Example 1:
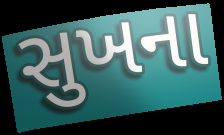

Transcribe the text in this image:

સુખના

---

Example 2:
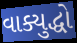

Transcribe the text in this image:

વાક્યુદ્ધો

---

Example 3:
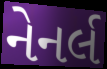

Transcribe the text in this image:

નેનર્લ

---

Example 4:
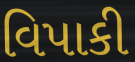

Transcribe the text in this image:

વિપાકી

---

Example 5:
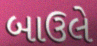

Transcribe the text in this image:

બાઉલે